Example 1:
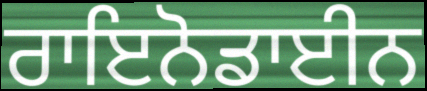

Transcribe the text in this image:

ਰਾਇਨੋਡਾਈਨ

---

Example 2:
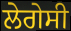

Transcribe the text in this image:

ਲੇਗੇਸੀ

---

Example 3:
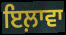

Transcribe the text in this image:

ਇਲ਼ਾਵਾ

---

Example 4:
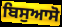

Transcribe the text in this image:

ਬਿਸੁਆਸੋ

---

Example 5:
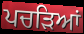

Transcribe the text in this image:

ਪਚੜਿਆਂ